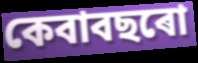
কেবাবছৰো